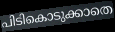
പിടികൊടുക്കാതെ